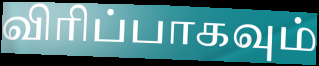
விரிப்பாகவும்